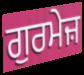
ਗੁਰਮੇਜ਼